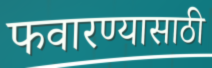
फवारण्यासाठी